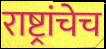
राष्ट्रांचेच